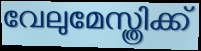
വേലുമേസ്ത്രിക്ക്